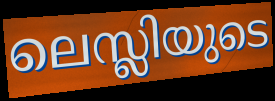
ലെസ്ലിയുടെ